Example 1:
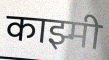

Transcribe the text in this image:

काझ्मी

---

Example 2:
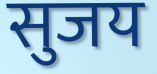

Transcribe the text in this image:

सुजय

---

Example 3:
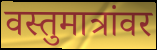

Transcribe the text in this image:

वस्तुमात्रांवर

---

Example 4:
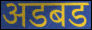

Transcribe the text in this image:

अडबड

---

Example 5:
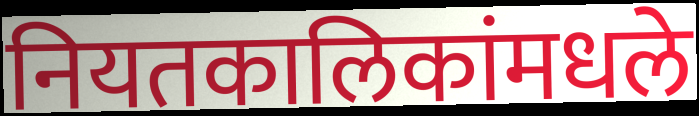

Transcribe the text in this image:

नियतकालिकांमधले